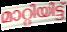
മാറ്റിയിട്ട്